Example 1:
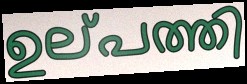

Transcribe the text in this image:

ഉല്‌പത്തി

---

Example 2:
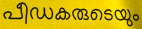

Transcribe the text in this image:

പീഡകരുടെയും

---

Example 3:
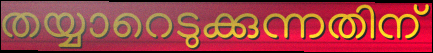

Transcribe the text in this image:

തയ്യാറെടുക്കുന്നതിന്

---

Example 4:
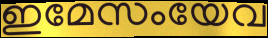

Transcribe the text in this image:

ഇമേസംയേവ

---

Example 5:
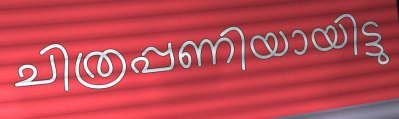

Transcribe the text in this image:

ചിത്രപ്പണിയായിട്ടു